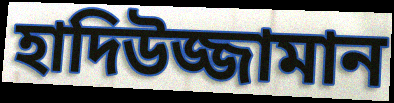
হাদিউজ্জামান